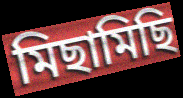
মিছামিছি